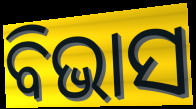
ବିଭାସ